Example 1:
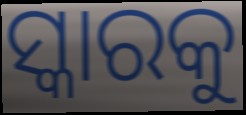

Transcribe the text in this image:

ସ୍କାରକୁ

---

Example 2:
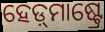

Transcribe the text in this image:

ହେଡ଼୍‌ମାଷ୍ଟ୍ରେ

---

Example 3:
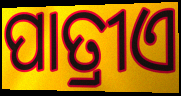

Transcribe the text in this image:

ପାତ୍ରୀଏ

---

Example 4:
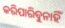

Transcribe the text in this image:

କରିପାରିବୁନାହିଁ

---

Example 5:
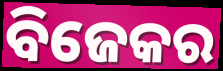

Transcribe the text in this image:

ବିଜେକର